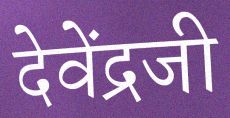
देवेंद्रजी